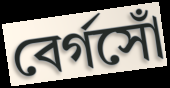
বের্গসোঁ